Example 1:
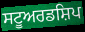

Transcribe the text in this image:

ਸਟੂਅਰਡਸ਼ਿਪ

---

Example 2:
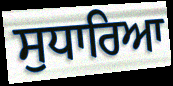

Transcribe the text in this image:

ਸੁਧਾਰਿਆ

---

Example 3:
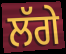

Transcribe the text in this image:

ਲੱਗੇ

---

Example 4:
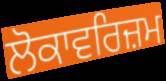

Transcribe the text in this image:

ਲੋਕਾਵਰਿਜ਼ਮ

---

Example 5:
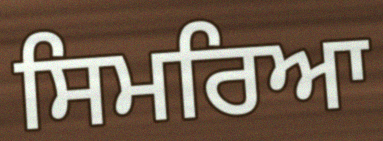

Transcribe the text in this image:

ਸਿਮਰਿਆ